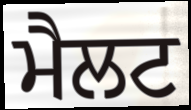
ਮੈਲਟ